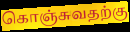
கொஞ்சுவதற்கு